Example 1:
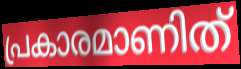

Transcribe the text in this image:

പ്രകാരമാണിത്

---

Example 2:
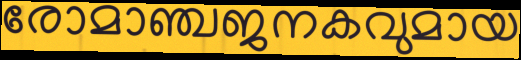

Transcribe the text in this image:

രോമാഞ്ചജനകവുമായ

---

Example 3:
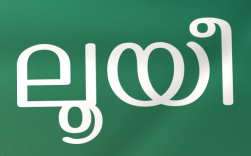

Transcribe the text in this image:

ലൂയീ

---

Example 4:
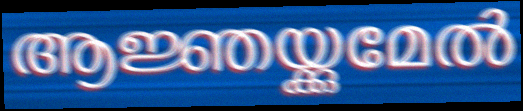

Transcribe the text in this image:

ആജ്ഞയ്ക്കുമേൽ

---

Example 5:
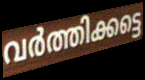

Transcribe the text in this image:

വർത്തിക്കട്ടെ